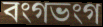
বংগভংগ